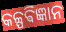
କଳ୍ପଵିଜ୍ଞାନ